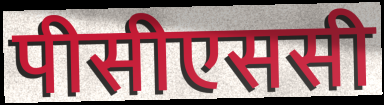
पीसीएससी